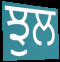
ਝੁਲ